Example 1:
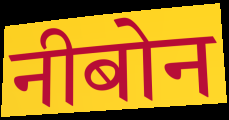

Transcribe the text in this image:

नीबोन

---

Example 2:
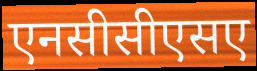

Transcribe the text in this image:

एनसीसीएसए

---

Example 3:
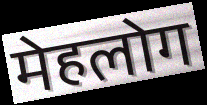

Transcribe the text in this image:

मेहलोग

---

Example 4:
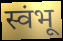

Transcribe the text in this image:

स्वंभू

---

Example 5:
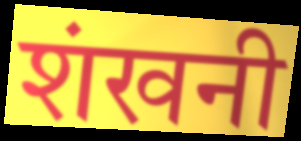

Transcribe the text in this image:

शंखनी